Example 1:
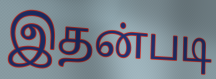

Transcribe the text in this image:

இதன்படி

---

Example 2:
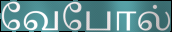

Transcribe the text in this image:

வேபோல்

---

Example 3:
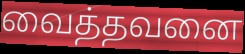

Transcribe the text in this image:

வைத்தவனை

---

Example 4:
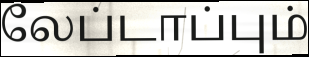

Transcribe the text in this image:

லேப்டாப்பும்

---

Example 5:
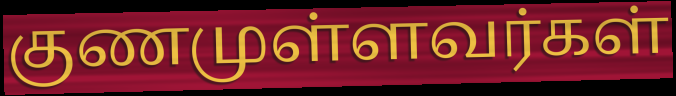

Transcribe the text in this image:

குணமுள்ளவர்கள்